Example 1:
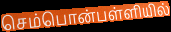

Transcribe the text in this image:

செம்பொன்பள்ளியில்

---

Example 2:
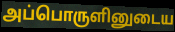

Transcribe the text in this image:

அப்பொருளினுடைய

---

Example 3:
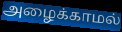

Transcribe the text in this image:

அழைக்காமல்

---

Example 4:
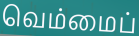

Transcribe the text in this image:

வெம்மைப்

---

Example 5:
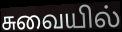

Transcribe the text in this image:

சுவையில்